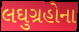
લઘુગ્રહોના